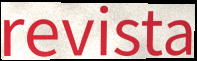
revista